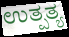
ಉತ್ಪತ್ಯ